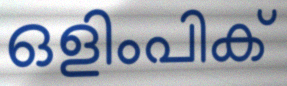
ഒളിംപിക്